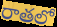
రాతలో